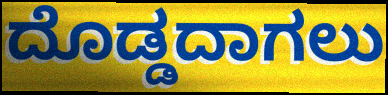
ದೊಡ್ಡದಾಗಲು